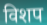
विशप